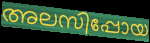
അലസിപ്പോയ